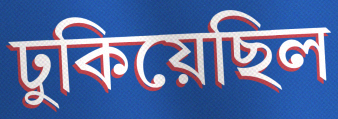
ঢুকিয়েছিল